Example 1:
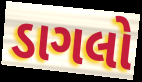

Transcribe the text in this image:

ડાગલો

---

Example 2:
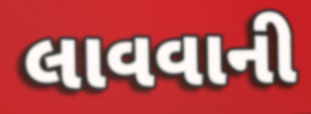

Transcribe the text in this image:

લાવવાની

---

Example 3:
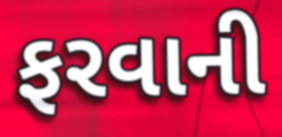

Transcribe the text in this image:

ફરવાની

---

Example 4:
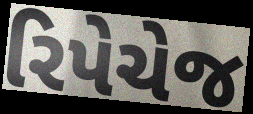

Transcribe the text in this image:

રિપેચેજ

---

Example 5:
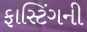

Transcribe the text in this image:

ફાસ્ટિંગની